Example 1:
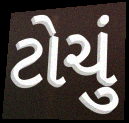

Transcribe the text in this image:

ટોચું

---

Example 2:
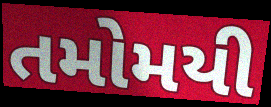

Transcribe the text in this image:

તમોમયી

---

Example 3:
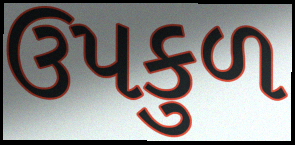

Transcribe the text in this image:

ઉપકુળ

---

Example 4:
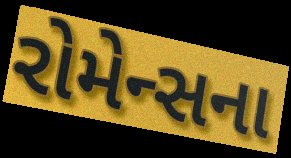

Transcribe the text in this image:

રોમેન્સના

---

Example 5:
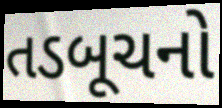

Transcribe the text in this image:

તડબૂચનો